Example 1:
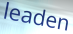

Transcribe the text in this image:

leaden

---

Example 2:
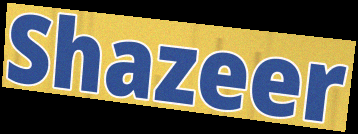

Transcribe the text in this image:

Shazeer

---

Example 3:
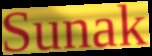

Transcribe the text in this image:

Sunak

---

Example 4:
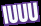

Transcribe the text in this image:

IUUU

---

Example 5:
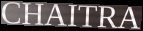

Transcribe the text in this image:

CHAITRA